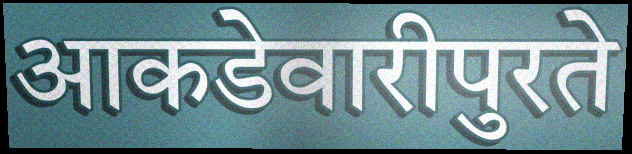
आकडेवारीपुरते